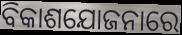
ବିକାଶଯୋଜନାରେ